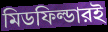
মিডফিল্ডারই